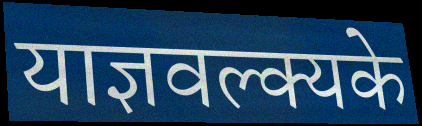
याज्ञवल्क्यके